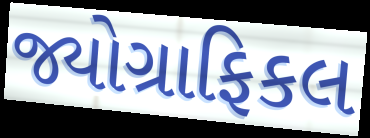
જ્યોગ્રાફિકલ